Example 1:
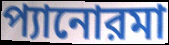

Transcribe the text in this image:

প্যানোরমা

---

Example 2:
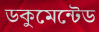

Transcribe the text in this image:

ডকুমেন্টেড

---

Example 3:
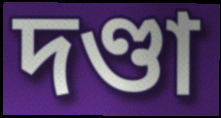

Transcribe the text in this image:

দণ্ডা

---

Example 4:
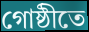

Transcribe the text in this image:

গোষ্ঠীতে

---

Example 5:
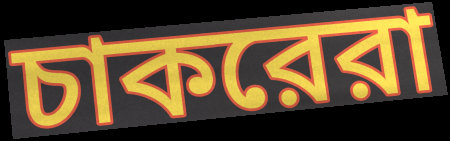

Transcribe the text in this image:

চাকরেরা